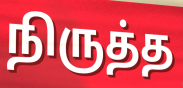
நிருத்த